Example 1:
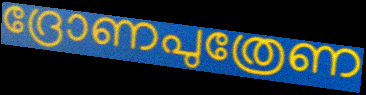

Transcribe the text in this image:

ദ്രോണപുത്രേണ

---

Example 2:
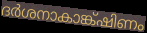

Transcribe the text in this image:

ദർശനാകാങ്ക്ഷിണം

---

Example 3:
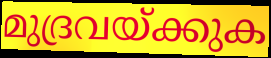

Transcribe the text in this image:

മുദ്രവയ്ക്കുക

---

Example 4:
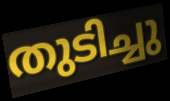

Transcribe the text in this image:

തുടിച്ചു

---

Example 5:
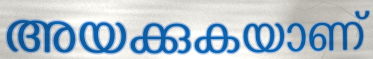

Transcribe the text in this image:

അയക്കുകയാണ്